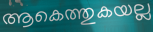
ആകെത്തുകയല്ല